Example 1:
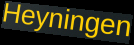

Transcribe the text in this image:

Heyningen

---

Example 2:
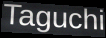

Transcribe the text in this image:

Taguchi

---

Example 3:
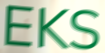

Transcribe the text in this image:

EKS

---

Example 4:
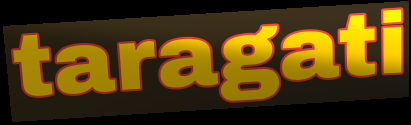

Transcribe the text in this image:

taragati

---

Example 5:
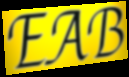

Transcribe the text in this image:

EAB